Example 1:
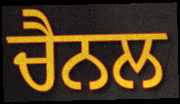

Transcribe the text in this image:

ਚੈਨਲ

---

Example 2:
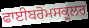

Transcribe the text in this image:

ਫਾਈਬਰੋਮਸਕੂਲਰ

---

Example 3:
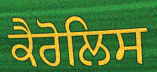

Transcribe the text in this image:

ਕੈਰੋਲਿਸ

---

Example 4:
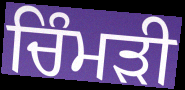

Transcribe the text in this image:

ਚਿੰਮੜੀ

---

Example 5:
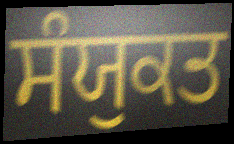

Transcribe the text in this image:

ਸੰਯੁਕਤ